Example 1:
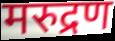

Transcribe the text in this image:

मरुद्रण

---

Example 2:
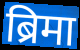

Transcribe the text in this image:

ब्रिमा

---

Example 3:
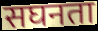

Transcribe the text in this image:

सघनता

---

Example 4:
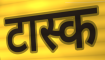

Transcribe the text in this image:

टास्क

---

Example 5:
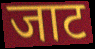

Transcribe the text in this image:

जाट